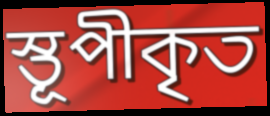
স্তূপীকৃত